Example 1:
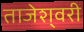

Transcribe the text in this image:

ताजेश्वरी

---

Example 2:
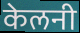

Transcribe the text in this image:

केलनी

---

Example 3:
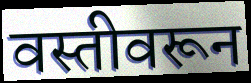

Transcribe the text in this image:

वस्तीवरून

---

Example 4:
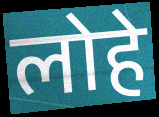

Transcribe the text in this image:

लोहे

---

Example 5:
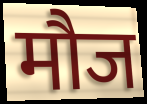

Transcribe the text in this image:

मौज